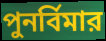
পুনর্বিমার